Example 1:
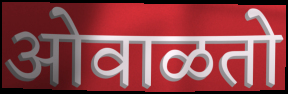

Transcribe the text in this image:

ओवाळतो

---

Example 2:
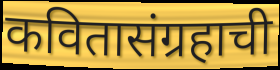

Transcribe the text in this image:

कवितासंग्रहाची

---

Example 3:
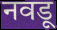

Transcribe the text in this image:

नवडू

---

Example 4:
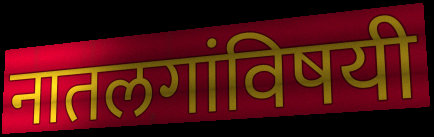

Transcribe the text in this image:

नातलगांविषयी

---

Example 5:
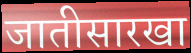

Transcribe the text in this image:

जातीसारखा